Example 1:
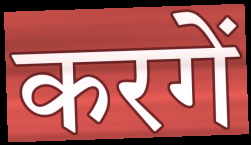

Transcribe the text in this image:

करगें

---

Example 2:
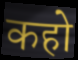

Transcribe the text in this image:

कहो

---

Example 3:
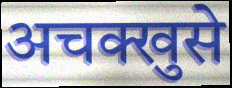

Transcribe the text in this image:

अचक्खुसे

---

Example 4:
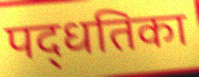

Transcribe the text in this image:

पद्धतिका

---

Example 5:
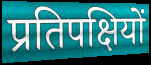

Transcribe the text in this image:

प्रतिपक्षियों